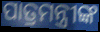
ପାତ୍ରମନ୍ତ୍ରୀଙ୍କ